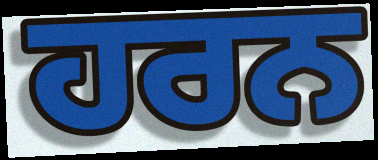
ਹਰਨ